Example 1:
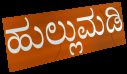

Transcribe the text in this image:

ಹುಲ್ಲುಮಡಿ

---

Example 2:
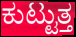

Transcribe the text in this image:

ಕುಟ್ಟುತ್ತ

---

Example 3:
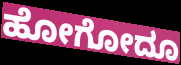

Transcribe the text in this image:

ಹೋಗೋದೂ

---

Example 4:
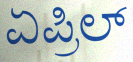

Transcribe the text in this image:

ಏಪ್ರಿಲ್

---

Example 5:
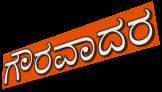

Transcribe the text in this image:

ಗೌರವಾದರ